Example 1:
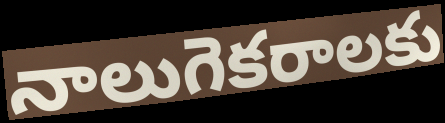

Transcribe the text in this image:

నాలుగెకరాలకు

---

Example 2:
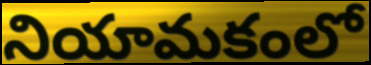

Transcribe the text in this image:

నియామకంలో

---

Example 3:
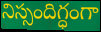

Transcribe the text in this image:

నిస్సందిగ్ధంగా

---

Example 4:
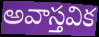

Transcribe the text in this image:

అవాస్తవిక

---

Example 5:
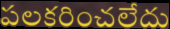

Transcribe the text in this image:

పలకరించలేదు